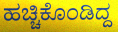
ಹಚ್ಚಿಕೊಂಡಿದ್ದ